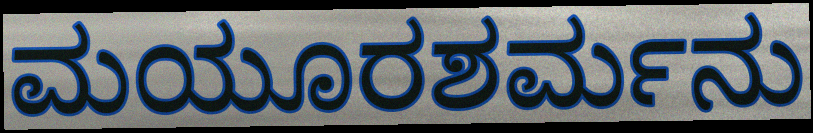
ಮಯೂರಶರ್ಮನು